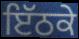
ਇੱਠਕੇ